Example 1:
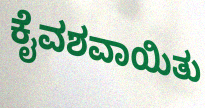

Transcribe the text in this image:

ಕೈವಶವಾಯಿತು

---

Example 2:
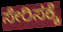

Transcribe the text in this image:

ಸೇರಿಸಕ್ಕೆ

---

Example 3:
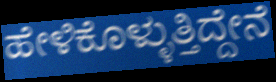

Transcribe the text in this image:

ಹೇಳಿಕೊಳ್ಳುತ್ತಿದ್ದೇನೆ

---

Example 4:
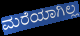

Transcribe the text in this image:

ಮರೆಯಾಗಿಲ್ಲ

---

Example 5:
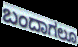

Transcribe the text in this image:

ಬಂದಾಗಲೂ